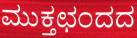
ಮುಕ್ತಛಂದದ